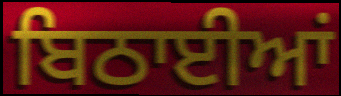
ਬਿਠਾਈਆਂ